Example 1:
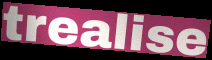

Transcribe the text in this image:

trealise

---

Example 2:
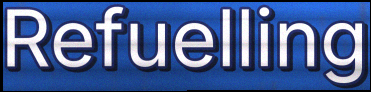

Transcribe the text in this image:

Refuelling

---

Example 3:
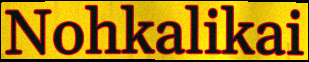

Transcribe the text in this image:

Nohkalikai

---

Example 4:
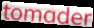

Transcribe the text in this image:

tomader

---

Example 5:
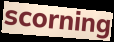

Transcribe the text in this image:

scorning